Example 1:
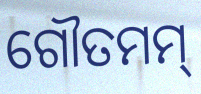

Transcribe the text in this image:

ଗୌତମମ୍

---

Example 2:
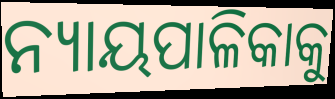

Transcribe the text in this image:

ନ୍ୟାୟପାଳିକାକୁ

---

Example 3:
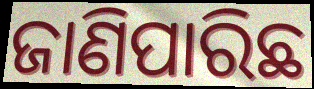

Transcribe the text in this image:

ଜାଣିପାରିଛ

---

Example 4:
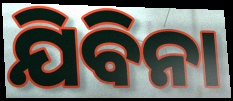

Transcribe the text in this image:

ଯିବିନା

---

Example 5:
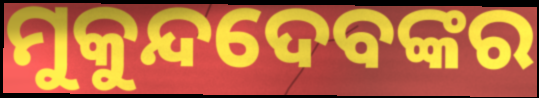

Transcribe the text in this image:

ମୁକୁନ୍ଦଦେବଙ୍କର